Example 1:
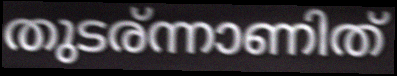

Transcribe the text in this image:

തുടര്ന്നാണിത്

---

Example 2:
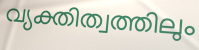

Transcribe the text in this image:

വ്യക്തിത്വത്തിലും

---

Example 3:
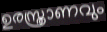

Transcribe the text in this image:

ഉരസ്ത്രാണവും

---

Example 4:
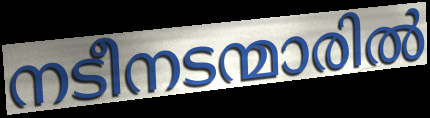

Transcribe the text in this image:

നടീനടന്മാരിൽ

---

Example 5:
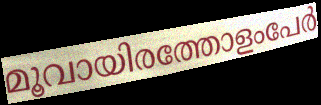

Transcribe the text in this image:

മൂവായിരത്തോളംപേർ